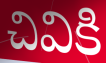
చివికి